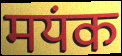
मयंक